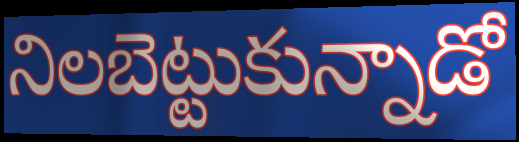
నిలబెట్టుకున్నాడో